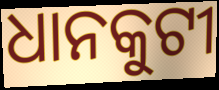
ଧାନକୁଟୀ